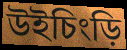
উইচিংড়ি